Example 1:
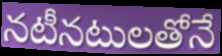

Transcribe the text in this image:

నటీనటులతోనే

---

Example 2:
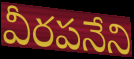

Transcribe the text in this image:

వీరపనేని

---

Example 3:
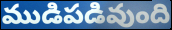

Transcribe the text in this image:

ముడిపడివుంది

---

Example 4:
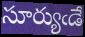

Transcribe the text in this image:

సూర్యుఁడే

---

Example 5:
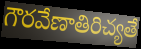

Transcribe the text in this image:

గౌరవేణాతిరిచ్యతే